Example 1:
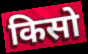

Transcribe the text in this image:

किसो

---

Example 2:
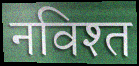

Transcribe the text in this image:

नविश्त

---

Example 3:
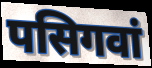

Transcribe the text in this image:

पसिगवां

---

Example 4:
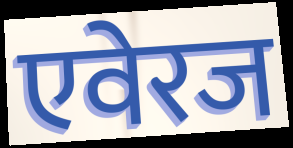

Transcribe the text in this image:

एवेरज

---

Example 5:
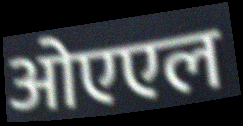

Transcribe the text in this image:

ओएएल